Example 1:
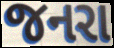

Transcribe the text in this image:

જનરા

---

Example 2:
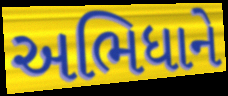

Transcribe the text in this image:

અભિધાને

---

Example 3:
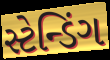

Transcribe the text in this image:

સ્ટેન્ડિંગ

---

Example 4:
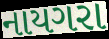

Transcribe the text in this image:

નાયગરા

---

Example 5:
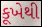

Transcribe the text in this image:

કૂખેથી